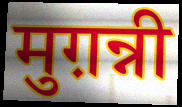
मुग़न्नी